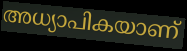
അധ്യാപികയാണ്